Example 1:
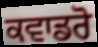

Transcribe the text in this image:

ਕਵਾਡਰੋ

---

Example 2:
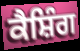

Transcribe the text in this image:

ਕੈਸ਼ਿੰਗ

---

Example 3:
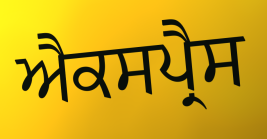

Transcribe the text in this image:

ਐਕਸਪ੍ਰੈਸ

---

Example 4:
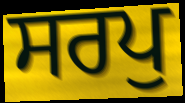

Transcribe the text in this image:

ਸਰਪੁ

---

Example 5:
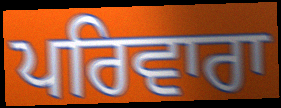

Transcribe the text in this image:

ਪਰਿਵਾਰਾ